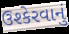
ઉશ્કેરવાનું